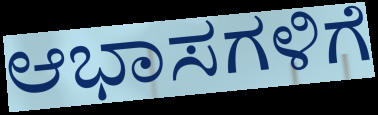
ಆಭಾಸಗಳಿಗೆ